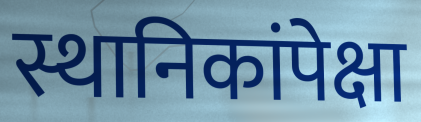
स्थानिकांपेक्षा